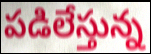
పడిలేస్తున్న